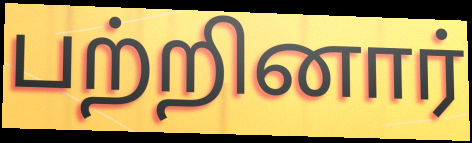
பற்றினார்